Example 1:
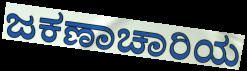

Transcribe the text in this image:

ಜಕಣಾಚಾರಿಯ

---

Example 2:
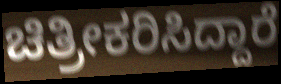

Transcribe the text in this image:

ಚಿತ್ರೀಕರಿಸಿದ್ದಾರೆ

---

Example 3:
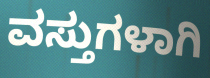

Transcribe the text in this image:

ವಸ್ತುಗಳಾಗಿ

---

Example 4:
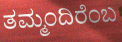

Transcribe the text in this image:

ತಮ್ಮಂದಿರೆಂಬ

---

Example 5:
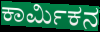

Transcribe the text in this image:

ಕಾರ್ಮಿಕನ